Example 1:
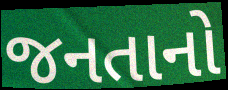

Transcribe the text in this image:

જનતાનો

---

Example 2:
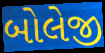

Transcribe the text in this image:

બોલેજી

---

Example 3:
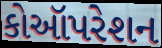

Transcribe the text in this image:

કોઑપરેશન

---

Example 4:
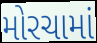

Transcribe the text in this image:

મોરચામાં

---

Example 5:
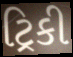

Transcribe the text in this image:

ટ્રિકી